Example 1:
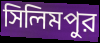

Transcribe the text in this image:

সিলিমপুর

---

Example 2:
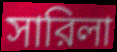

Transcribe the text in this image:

সারিলা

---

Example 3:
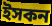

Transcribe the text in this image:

ইসকন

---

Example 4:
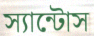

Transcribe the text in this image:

স্যান্টোস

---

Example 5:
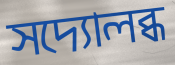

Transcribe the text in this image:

সদ্যোলব্ধ